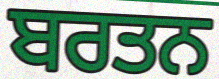
ਬਰਤਨ